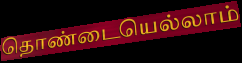
தொண்டையெல்லாம்